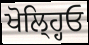
ਖੋਲ੍ਹ੍ਹਿਓ